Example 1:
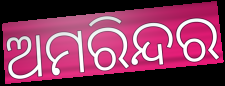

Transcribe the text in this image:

ଅମରିନ୍ଦର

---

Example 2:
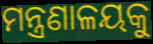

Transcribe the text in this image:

ମନ୍ତ୍ରଣାଳୟକୁ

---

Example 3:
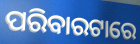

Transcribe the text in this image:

ପରିବାରଟାରେ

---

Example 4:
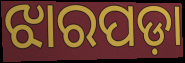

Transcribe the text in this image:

ଝାରପଡ଼ା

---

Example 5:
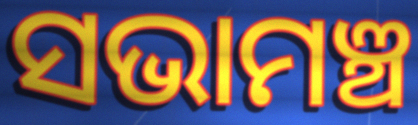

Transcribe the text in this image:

ସଭାମଞ୍ଚ